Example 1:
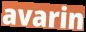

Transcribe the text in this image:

avarin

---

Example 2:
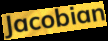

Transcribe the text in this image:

Jacobian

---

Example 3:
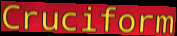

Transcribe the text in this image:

Cruciform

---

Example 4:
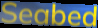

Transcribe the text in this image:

Seabed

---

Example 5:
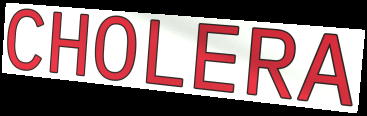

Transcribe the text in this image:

CHOLERA